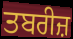
ਤਬਰੀਜ਼